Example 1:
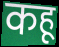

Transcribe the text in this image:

कहू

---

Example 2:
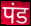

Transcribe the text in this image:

पंड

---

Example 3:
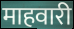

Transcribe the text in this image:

माहवारी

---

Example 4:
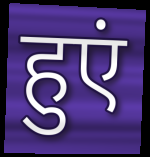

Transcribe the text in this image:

हुएं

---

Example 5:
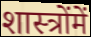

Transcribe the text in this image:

शास्त्रोंमें